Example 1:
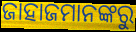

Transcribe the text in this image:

ଜାହାଜମାନଙ୍କରୁ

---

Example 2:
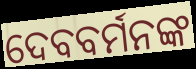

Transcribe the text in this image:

ଦେବବର୍ମନଙ୍କ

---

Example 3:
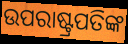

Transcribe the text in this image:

ଉପରାଷ୍ଟ୍ରପତିଙ୍କ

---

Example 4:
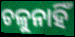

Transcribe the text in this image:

ଚଳୁନାହିଁ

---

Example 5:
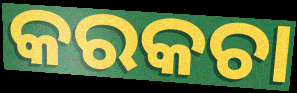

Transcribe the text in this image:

କରକଚା